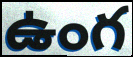
ఉంగ